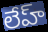
లేహ్